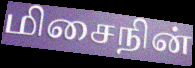
மிசைநின்